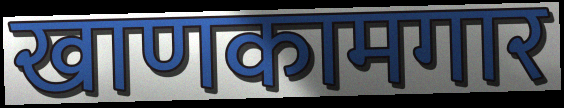
खाणकामगार